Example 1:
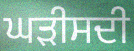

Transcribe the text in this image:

ਘੜੀਸਦੀ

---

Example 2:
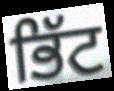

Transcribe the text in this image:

ਭਿੱਟ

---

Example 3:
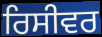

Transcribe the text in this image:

ਰਿਸੀਵਰ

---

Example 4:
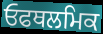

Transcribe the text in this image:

ਓਫਥਲਮਿਕ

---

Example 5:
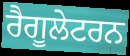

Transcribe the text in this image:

ਰੈਗੂਲੇਟਰਨ